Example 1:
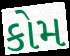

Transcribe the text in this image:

કોમ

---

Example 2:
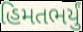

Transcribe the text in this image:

હિમતભર્યું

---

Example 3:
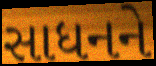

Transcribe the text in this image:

સાધનને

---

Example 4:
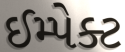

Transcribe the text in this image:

ઈમ્પેક્ટ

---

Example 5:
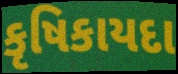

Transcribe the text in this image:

કૃષિકાયદા